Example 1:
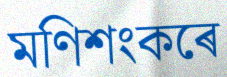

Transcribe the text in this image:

মণিশংকৰে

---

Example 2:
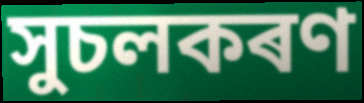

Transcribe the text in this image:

সুচলকৰণ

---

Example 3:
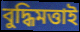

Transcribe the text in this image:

বুদ্ধিমত্তাই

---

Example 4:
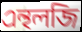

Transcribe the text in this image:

এন্থলজি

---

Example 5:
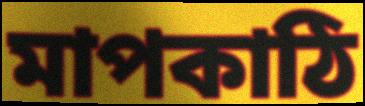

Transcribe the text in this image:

মাপকাঠি